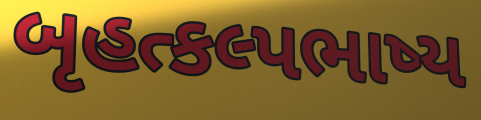
બૃહત્કલ્પભાષ્ય